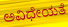
ಅವಿಧೇಯತೆ